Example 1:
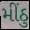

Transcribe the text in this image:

મીંઠુ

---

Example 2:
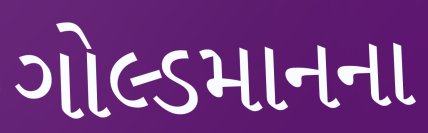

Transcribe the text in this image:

ગોલ્ડમાનના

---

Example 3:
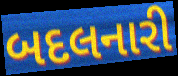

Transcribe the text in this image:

બદલનારી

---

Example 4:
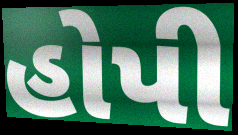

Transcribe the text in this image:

હોપી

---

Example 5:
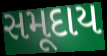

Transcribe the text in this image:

સમૂદાય